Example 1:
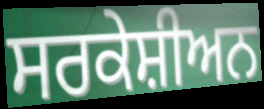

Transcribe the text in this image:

ਸਰਕੇਸ਼ੀਅਨ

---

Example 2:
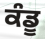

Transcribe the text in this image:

ਕੰਡੂ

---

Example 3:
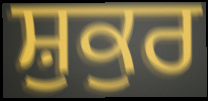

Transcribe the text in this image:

ਸ਼ੁਕੁਰ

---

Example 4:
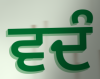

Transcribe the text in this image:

ਵਦੰ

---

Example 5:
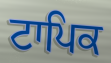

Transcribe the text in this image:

ਟਾਪਿਕ